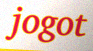
jogot